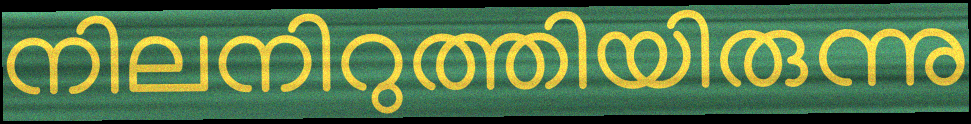
നിലനിറുത്തിയിരുന്നു